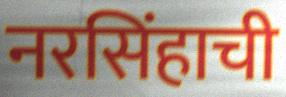
नरसिंहाची